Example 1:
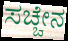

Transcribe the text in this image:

ಸಚ್ಚೇನ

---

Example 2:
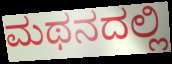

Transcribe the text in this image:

ಮಥನದಲ್ಲಿ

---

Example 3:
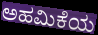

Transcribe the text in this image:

ಅಹಮಿಕೆಯ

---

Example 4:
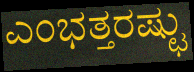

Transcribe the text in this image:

ಎಂಭತ್ತರಷ್ಟು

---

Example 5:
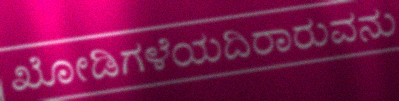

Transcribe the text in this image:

ಖೋಡಿಗಳೆಯದಿರಾರುವನು